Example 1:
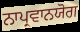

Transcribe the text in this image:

ਨਾਪ੍ਰਵਾਨਯੋਗ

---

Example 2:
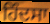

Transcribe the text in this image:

ਹਿੰਦਸਾ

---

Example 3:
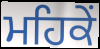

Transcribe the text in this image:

ਮਹਿਕੇਂ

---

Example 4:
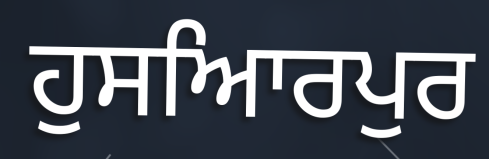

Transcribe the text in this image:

ਹੁਸਆਿਰਪੁਰ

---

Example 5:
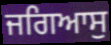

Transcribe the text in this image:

ਜਗਿਆਸੁ